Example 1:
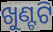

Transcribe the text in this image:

ଖୁଣ୍ଟଟି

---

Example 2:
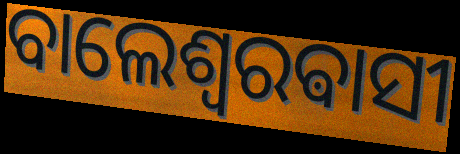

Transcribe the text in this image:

ବାଲେଶ୍ଵରଵାସୀ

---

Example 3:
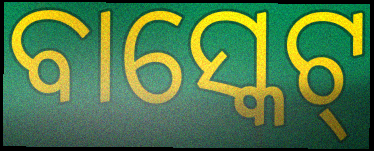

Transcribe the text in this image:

ବାସ୍କେଟ୍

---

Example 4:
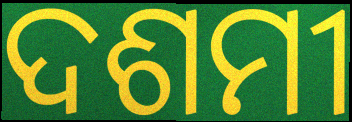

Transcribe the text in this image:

ଦଶମୀ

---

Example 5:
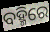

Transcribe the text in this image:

ବହ୍ମିରେ